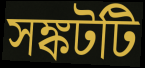
সঙ্কটটি